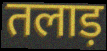
तलाड़